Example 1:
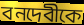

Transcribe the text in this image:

বনদেবীকে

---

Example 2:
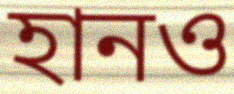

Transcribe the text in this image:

হানও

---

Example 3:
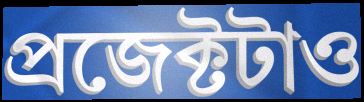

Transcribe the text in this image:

প্রজেক্টটাও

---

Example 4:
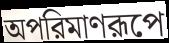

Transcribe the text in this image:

অপরিমাণরূপে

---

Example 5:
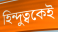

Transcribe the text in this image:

হিন্দুত্বকেই